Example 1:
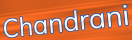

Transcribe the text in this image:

Chandrani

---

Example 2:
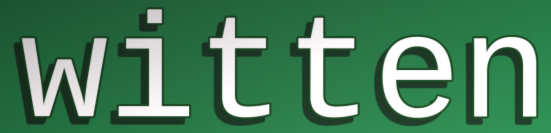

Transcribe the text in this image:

witten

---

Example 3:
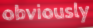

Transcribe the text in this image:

obviously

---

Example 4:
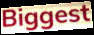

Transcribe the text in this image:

Biggest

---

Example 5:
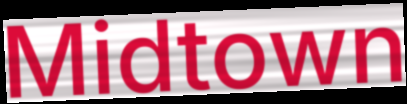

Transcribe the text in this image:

Midtown